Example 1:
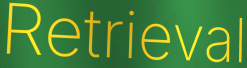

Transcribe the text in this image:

Retrieval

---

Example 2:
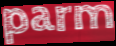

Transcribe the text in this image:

parm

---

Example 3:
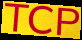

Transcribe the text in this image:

TCP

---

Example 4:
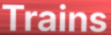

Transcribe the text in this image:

Trains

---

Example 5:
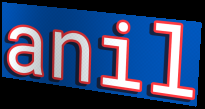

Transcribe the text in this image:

anil